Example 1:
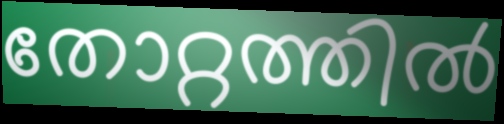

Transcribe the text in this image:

തോറ്റത്തിൽ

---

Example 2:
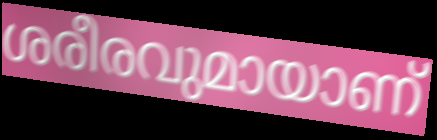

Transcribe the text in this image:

ശരീരവുമായാണ്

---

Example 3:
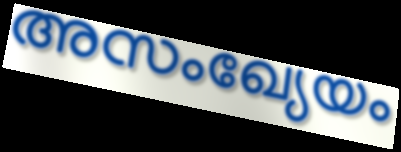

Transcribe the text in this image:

അസംഖ്യേയം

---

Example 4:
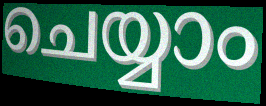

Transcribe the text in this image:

ചെയ്യാം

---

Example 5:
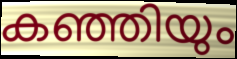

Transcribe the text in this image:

കഞ്ഞിയും